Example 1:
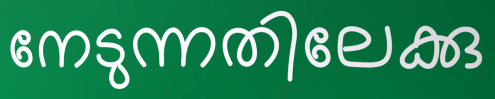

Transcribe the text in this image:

നേടുന്നതിലേക്കു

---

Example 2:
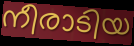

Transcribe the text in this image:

നീരാടിയ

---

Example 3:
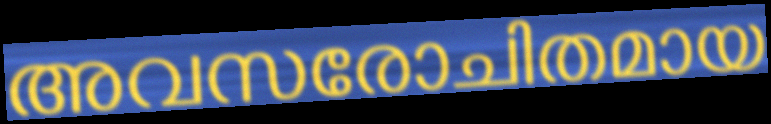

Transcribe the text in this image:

അവസരോചിതമായ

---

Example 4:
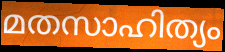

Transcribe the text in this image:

മതസാഹിത്യം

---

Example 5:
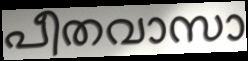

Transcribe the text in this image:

പീതവാസാ